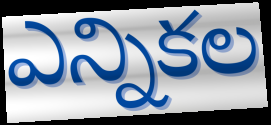
ఎన్నికల